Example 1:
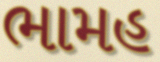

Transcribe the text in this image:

ભામહ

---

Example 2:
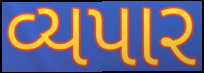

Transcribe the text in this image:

વ્યપાર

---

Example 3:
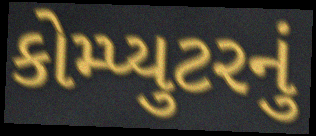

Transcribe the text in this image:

કોમ્પ્યુટરનું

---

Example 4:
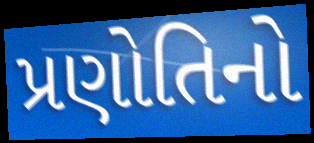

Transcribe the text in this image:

પ્રણોતિનો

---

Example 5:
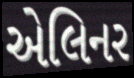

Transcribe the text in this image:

એલિનર